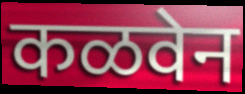
कळवेन